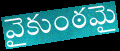
వైకుంఠమై